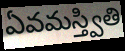
ఏవమస్త్వితి